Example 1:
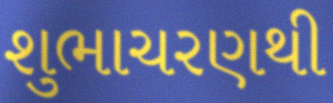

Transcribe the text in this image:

શુભાચરણથી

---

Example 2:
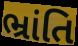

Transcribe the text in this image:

ભ્રાંતિ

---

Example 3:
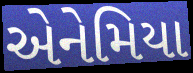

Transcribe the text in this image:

એનેમિયા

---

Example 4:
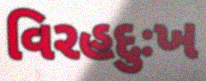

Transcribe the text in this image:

વિરહદુઃખ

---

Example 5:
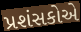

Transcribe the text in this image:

પ્રશંસકોએ